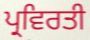
ਪ੍ਰਵਿਰਤੀ